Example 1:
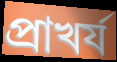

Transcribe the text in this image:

প্রাখর্য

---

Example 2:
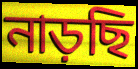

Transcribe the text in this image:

নাড়ছি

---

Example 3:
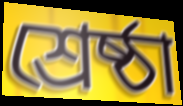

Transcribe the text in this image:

শ্রেষ্ঠা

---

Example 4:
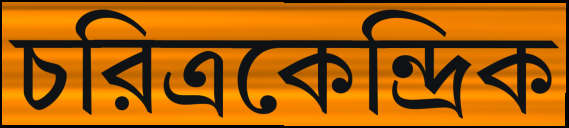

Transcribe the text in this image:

চরিত্রকেন্দ্রিক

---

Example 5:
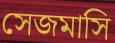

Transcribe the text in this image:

সেজমাসি